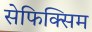
सेफिक्सिम